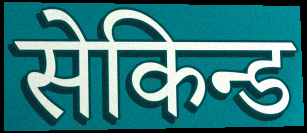
सेकिन्ड